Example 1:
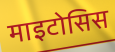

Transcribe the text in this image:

माइटोसिस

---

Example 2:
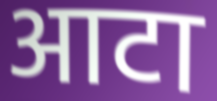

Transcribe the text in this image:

आटा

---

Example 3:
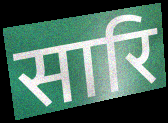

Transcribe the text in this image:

सारि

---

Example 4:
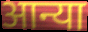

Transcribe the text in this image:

आन्या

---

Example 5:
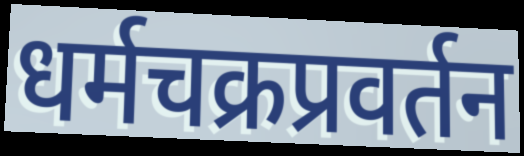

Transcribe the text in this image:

धर्मचक्रप्रवर्तन